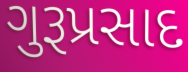
ગુરૂપ્રસાદ